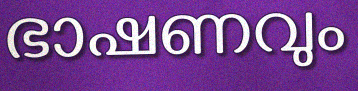
ഭാഷണവും